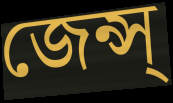
জেন্স্